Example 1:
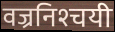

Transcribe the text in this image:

वज्रनिश्चयी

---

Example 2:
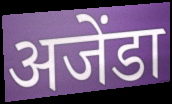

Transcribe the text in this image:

अजेंडा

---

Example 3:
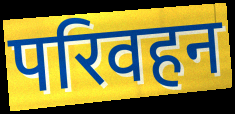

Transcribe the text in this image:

परिवहन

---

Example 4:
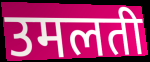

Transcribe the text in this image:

उमलती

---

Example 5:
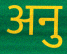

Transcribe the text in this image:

अनु